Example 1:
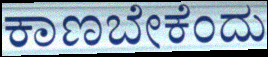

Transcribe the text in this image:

ಕಾಣಬೇಕೆಂದು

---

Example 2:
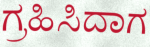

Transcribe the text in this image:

ಗ್ರಹಿಸಿದಾಗ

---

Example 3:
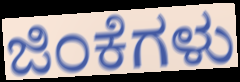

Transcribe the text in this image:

ಜಿಂಕೆಗಳು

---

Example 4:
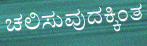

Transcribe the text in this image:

ಚಲಿಸುವುದಕ್ಕಿಂತ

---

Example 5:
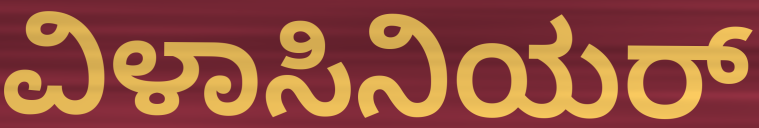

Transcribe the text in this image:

ವಿಳಾಸಿನಿಯರ್